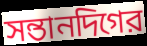
সন্তানদিগের